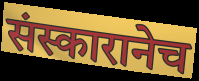
संस्कारानेच